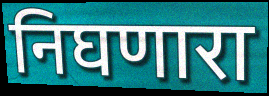
निघणारा